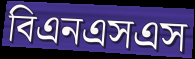
বিএনএসএস